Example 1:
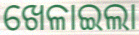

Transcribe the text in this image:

ଖେଳାଇଲା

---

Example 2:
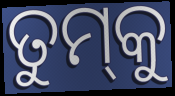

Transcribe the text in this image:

ତୁମ୍‌କୁ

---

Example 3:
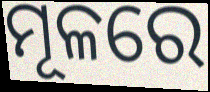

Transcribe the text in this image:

ମୂଳରେ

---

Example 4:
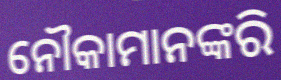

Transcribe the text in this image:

ନୌକାମାନଙ୍କରି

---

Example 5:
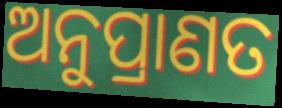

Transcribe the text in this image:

ଅନୁପ୍ରାଣତ